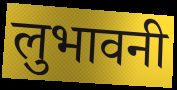
लुभावनी